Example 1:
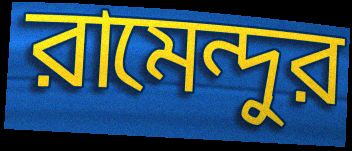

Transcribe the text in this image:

রামেন্দুর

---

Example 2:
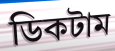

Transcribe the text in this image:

ডিকটাম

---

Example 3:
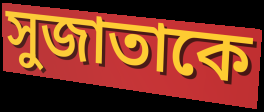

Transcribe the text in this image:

সুজাতাকে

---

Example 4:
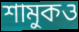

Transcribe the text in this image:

শামুকও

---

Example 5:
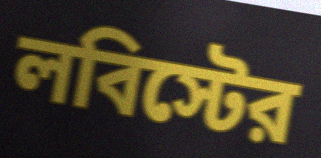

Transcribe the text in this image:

লবিস্টের